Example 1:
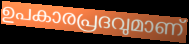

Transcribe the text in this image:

ഉപകാരപ്രദവുമാണ്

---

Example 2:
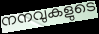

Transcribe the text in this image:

നനവുകളുടെ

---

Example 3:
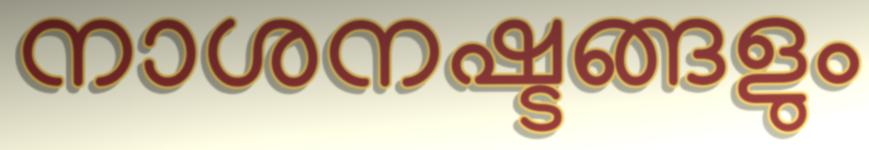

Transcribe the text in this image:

നാശനഷ്ടങ്ങളും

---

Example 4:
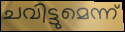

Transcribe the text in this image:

ചവിട്ടുമെന്ന്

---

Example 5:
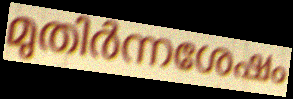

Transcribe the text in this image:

മുതിർന്നശേഷം